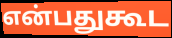
என்பதுகூட